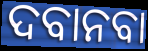
ଦବାନବା